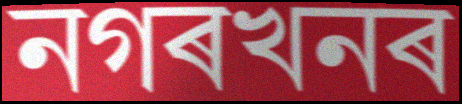
নগৰখনৰ